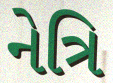
નેત્રિ